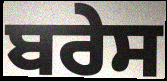
ਬਰੇਸ